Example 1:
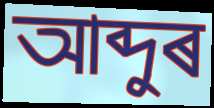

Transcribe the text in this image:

আব্দুৰ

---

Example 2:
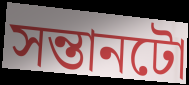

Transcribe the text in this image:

সন্তানটো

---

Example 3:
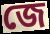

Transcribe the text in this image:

জে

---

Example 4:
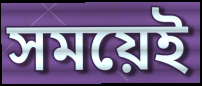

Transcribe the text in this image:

সময়েই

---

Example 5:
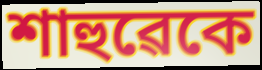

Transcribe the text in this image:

শাহুৱেকে